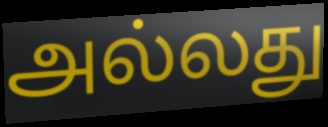
அல்லது